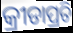
କ୍ରୀଡାପ୍ରତି